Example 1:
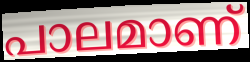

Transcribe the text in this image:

പാലമാണ്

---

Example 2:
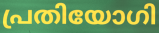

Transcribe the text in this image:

പ്രതിയോഗി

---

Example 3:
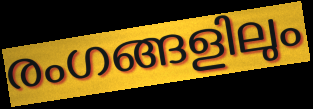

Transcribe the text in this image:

രംഗങ്ങളിലും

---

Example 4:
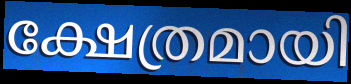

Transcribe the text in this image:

ക്ഷേത്രമായി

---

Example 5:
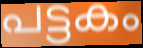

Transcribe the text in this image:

പട്ടകം